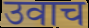
उवाच